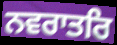
ਨਵਰਾਤਰਿ